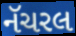
નૅચરલ